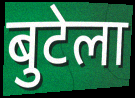
बुटेला